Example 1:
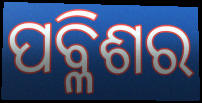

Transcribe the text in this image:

ପବ୍ଳିଶର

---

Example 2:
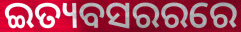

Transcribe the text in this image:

ଇତ୍ୟବସରରରେ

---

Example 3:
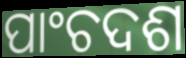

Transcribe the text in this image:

ପାଂଚଦଶ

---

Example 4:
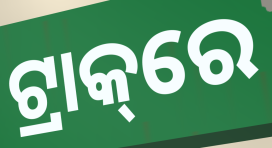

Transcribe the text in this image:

ଟ୍ରାକ୍‌ରେ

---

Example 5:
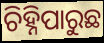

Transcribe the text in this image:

ଚିହ୍ନିପାରୁଛ